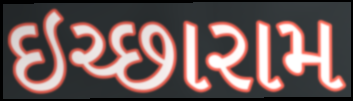
ઇચ્છારામ